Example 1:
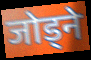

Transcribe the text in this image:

जोड्ने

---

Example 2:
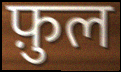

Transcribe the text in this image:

फ़ुल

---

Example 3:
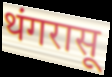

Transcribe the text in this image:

थंगरासू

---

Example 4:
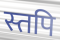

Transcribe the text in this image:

स्‍तपि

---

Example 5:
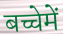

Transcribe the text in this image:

बच्चेमें